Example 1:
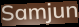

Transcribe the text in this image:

Samjun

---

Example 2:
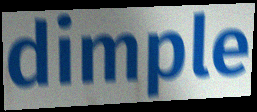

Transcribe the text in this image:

dimple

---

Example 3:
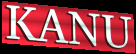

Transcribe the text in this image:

KANU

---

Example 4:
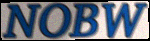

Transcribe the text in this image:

NOBW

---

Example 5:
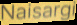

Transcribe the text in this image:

Naisargi